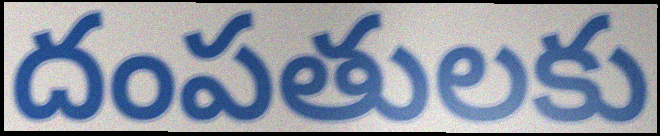
దంపతులకు